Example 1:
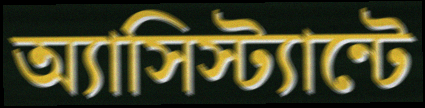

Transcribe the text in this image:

অ্যাসিস্ট্যান্টে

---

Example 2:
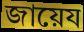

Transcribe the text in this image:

জায়েয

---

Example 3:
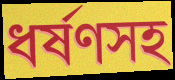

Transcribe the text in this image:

ধর্ষণসহ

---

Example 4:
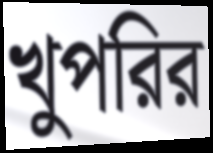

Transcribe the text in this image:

খুপরির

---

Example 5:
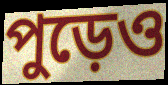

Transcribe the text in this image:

পুড়েও